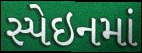
સ્પેઇનમાં